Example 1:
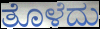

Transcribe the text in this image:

ತೊಳೆದು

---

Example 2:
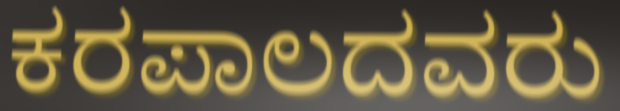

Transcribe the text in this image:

ಕರಪಾಲದವರು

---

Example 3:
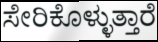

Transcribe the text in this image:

ಸೇರಿಕೊಳ್ಳುತ್ತಾರೆ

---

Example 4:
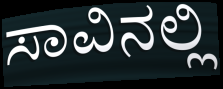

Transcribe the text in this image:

ಸಾವಿನಲ್ಲಿ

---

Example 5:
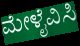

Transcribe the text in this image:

ಮೇಳೈವಿಸಿ